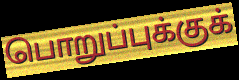
பொறுப்புக்குக்